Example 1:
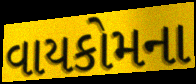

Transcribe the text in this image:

વાયકોમના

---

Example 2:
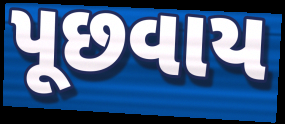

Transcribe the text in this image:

પૂછવાય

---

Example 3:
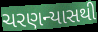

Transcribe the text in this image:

ચરણન્યાસથી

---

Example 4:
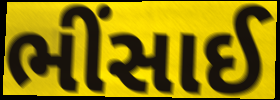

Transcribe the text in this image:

ભીંસાઈ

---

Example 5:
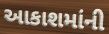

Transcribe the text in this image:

આકાશમાંની